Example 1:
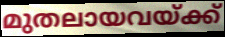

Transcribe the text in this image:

മുതലായവയ്ക്ക്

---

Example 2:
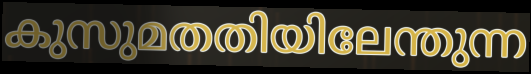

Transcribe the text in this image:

കുസുമതതിയിലേന്തുന്ന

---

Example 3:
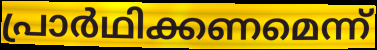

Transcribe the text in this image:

പ്രാർഥിക്കണമെന്ന്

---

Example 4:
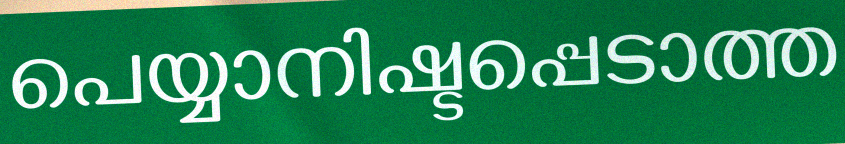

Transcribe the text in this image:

പെയ്യാനിഷ്ടപ്പെടാത്ത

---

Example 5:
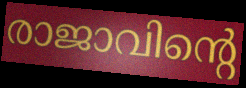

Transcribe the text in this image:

രാജാവിന്റെ